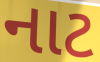
નાટ